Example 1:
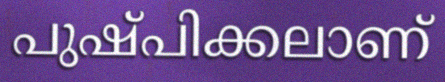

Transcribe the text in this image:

പുഷ്പിക്കലാണ്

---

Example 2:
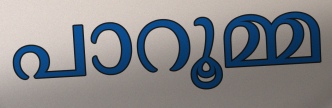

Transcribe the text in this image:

പാറൂമ്മ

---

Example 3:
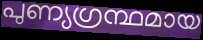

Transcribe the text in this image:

പുണ്യഗ്രന്ഥമായ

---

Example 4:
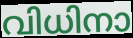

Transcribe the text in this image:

വിധിനാ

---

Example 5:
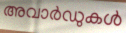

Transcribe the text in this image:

അവാർഡുകൾ